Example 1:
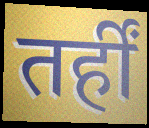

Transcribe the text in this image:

तर्हीं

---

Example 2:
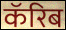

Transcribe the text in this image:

कॅरिब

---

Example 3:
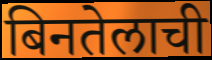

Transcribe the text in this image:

बिनतेलाची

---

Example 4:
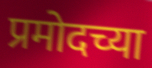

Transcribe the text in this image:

प्रमोदच्या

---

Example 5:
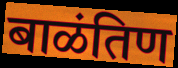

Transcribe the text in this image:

बाळंतिण